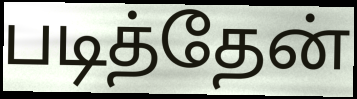
படித்தேன்